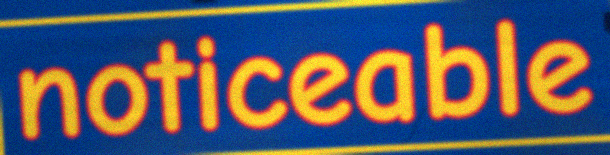
noticeable